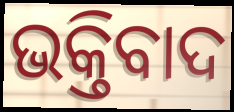
ଭକ୍ତିବାଦ